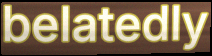
belatedly